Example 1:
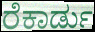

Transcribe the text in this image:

ರೆಕಾರ್ಡು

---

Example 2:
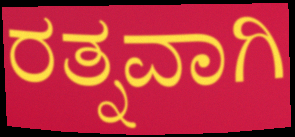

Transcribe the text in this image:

ರತ್ನವಾಗಿ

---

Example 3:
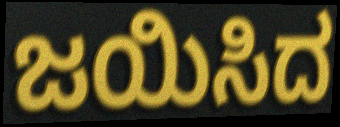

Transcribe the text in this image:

ಜಯಿಸಿದ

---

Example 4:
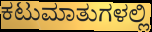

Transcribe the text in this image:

ಕಟುಮಾತುಗಳಲ್ಲಿ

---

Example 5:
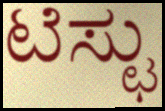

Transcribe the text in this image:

ಟೆಸ್ಟು